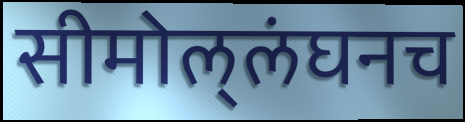
सीमोल्लंघनच